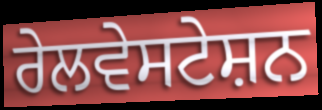
ਰੇਲਵੇਸਟੇਸ਼ਨ